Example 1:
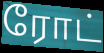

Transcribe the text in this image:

ரோட்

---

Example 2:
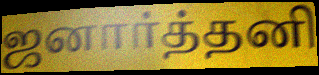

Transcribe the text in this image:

ஜனார்த்தனி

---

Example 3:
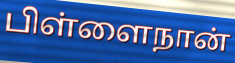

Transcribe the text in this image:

பிள்ளைநான்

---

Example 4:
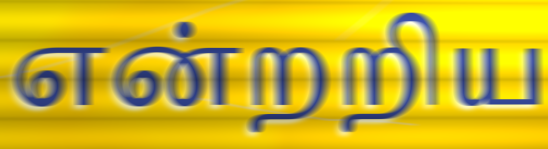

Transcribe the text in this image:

என்றறிய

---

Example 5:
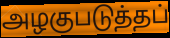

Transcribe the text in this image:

அழகுபடுத்தப்